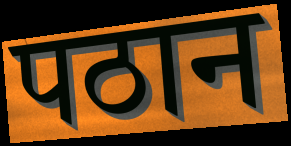
पठान